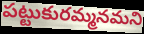
పట్టుకురమ్మనమని